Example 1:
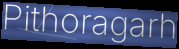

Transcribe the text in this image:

Pithoragarh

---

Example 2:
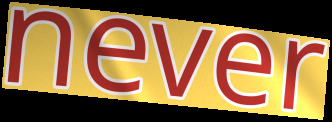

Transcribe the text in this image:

never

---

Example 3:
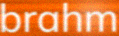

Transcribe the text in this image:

brahm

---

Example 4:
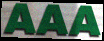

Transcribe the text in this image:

AAA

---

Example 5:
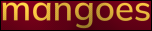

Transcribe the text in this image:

mangoes